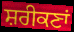
ਸ਼ਰੀਕਣਾਂ